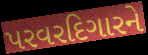
પરવરદિગારને